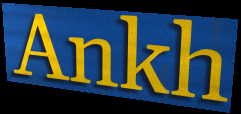
Ankh